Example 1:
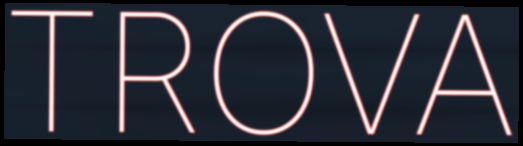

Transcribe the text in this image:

TROVA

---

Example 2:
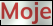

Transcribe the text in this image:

Moje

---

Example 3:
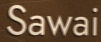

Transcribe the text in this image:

Sawai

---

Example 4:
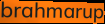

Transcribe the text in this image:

brahmarup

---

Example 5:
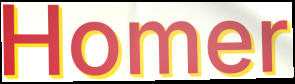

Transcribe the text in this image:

Homer